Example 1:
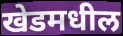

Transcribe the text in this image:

खेडमधील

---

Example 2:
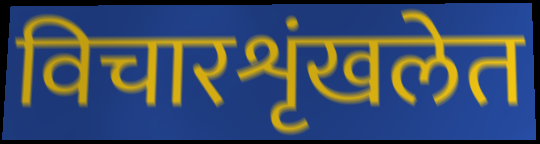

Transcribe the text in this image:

विचारशृंखलेत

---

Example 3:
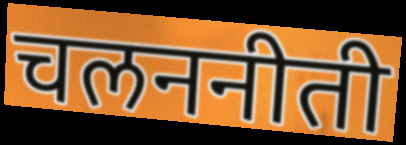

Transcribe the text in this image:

चलननीती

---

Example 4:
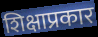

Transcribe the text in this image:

शिक्षाप्रकार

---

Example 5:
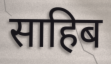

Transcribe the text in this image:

साहिब